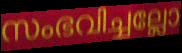
സംഭവിച്ചല്ലോ